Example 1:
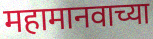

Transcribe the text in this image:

महामानवाच्या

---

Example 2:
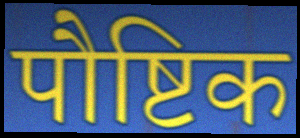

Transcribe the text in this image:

पौष्टिक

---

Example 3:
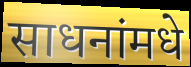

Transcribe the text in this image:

साधनांमधे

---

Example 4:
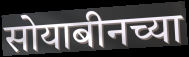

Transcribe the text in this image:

सोयाबीनच्या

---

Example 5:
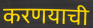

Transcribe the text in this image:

करणयाची